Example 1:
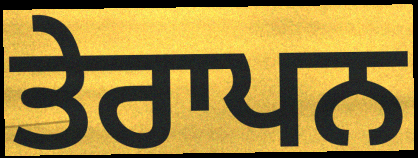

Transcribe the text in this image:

ਤੇਰਾਪਨ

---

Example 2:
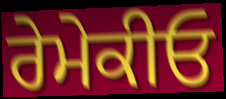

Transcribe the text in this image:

ਰੇਮੇਕੀਓ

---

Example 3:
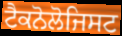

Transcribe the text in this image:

ਟੈਕਨੋਲੋਜਿਸਟ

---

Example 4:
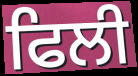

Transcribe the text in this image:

ਫਿਲੀ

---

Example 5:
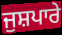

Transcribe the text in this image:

ਜੁਸ਼ਪਾਰੇ